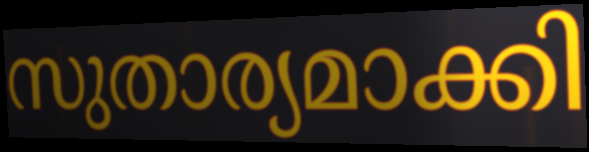
സുതാര്യമാക്കി